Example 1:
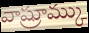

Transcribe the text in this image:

వాష్రూమ్కు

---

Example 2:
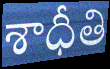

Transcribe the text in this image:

శాధీతి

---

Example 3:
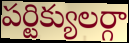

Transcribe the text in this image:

పర్టిక్యులర్గా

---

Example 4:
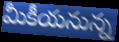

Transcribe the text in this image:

మీకీయనున్న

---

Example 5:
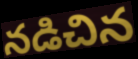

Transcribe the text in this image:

నడిచిన